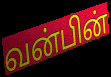
வன்பின்